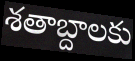
శతాబ్దాలకు